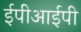
ईपीआईपी